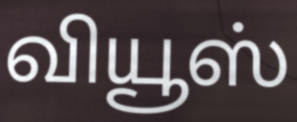
வியூஸ்